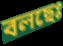
বলছেঃ